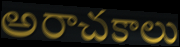
అరాచకాలు